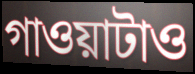
গাওয়াটাও